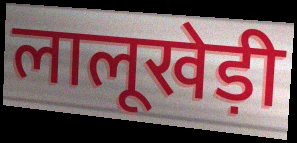
लालूखेड़ी